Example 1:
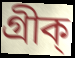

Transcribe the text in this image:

গ্রীক্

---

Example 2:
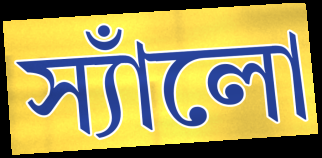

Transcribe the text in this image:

স্যাঁলো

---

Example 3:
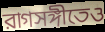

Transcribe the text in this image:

রাগসঙ্গীতেও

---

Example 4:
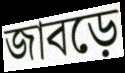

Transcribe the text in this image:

জাবড়ে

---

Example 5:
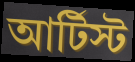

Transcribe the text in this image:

আর্টিস্ট